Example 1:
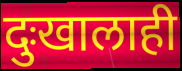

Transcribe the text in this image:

दुःखालाही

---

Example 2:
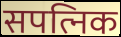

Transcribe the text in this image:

सपत्‍निक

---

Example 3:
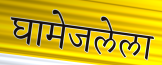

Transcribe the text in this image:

घामेजलेला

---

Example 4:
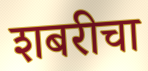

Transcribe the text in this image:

शबरीचा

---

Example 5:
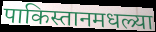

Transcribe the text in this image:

पाकिस्तानमधल्या